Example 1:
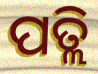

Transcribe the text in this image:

ପତ୍ଲି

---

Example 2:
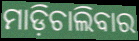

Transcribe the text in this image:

ମାଡ଼ିଚାଲିବାର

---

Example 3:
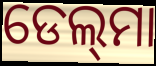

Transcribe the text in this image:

ଡେଲ୍‍ମା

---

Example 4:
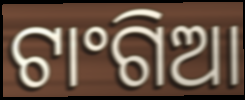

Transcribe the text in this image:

ଟାଂଗିଆ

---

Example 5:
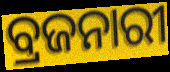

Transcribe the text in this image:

ବ୍ରଜନାରୀ